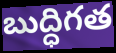
బుద్ధిగత